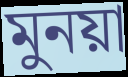
মুনয়া